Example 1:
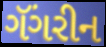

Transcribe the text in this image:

ગૅંગરીન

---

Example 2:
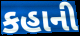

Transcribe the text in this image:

કહાની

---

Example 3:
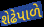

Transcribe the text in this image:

શેઢેપાળે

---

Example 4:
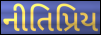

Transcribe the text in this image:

નીતિપ્રિય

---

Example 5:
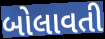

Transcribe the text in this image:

બોલાવતી